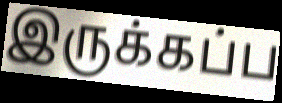
இருக்கப்ப